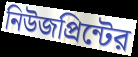
নিউজপ্রিন্টের